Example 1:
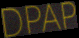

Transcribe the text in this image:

DPAP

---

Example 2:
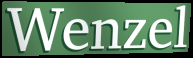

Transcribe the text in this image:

Wenzel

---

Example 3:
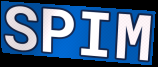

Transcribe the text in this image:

SPIM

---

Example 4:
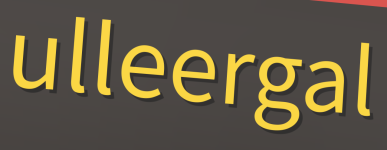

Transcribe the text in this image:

ulleergal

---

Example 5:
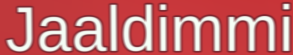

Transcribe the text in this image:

Jaaldimmi